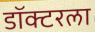
डॉक्टरला